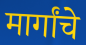
मार्गांचे